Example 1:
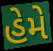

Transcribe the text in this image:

હેમે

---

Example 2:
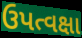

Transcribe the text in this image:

ઉપત્વક્ષા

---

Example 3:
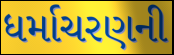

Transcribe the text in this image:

ધર્માચરણની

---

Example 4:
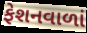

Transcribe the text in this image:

ફેશનવાળાં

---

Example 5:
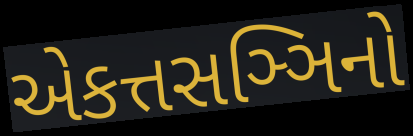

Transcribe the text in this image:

એકત્તસઞ્ઞિનો